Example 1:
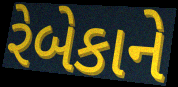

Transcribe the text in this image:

રેબેકાને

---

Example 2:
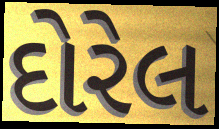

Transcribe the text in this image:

દોરેલ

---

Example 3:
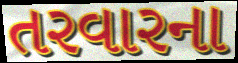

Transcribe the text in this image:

તરવારના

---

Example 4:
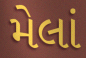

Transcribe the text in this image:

મેલાં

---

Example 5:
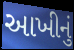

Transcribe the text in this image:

આખીનું